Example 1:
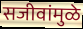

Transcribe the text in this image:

सजीवांमुळे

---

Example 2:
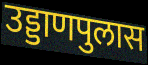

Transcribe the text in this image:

उड्डाणपुलास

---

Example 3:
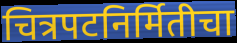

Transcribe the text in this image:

चित्रपटनिर्मितीचा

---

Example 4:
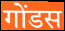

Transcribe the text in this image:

गोंडस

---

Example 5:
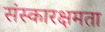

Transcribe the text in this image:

संस्कारक्षमता